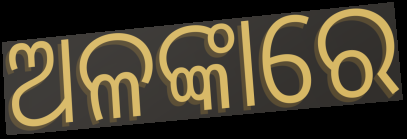
ଅଳଙ୍କାରେ